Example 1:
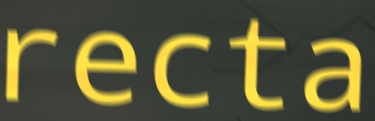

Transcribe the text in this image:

recta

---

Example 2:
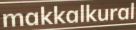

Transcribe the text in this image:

makkalkural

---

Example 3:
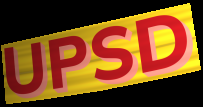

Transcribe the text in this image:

UPSD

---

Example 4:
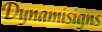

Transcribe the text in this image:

Dynamisigns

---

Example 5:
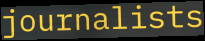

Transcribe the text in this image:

journalists